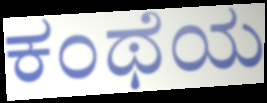
ಕಂಥೆಯ